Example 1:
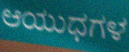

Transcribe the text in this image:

ಆಯುಧಗಳ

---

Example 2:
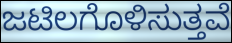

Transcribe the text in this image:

ಜಟಿಲಗೊಳಿಸುತ್ತವೆ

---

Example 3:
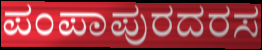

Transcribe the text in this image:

ಪಂಪಾಪುರದರಸ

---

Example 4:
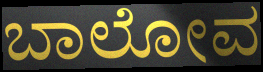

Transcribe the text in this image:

ಬಾಲೋವ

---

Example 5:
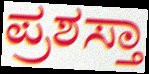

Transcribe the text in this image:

ಪ್ರಶಸ್ತಾ